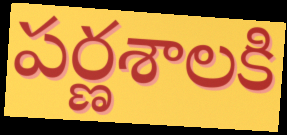
పర్ణశాలకి